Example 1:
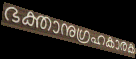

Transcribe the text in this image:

ഭക്താനുഗ്രഹകാരക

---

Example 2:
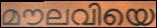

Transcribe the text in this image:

മൗലവിയെ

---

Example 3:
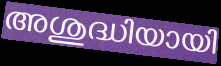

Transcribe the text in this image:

അശുദ്ധിയായി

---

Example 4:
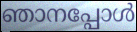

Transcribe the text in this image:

ഞാനപ്പോൾ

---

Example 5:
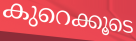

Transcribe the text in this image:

കുറെക്കൂടെ